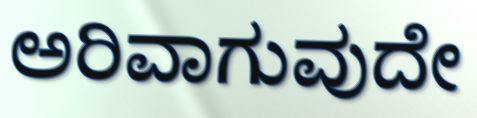
ಅರಿವಾಗುವುದೇ